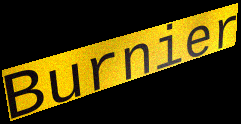
Burnier